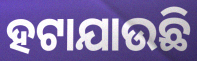
ହଟାଯାଉଛି